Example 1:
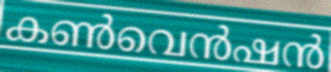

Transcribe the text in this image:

കൺവെൻഷൻ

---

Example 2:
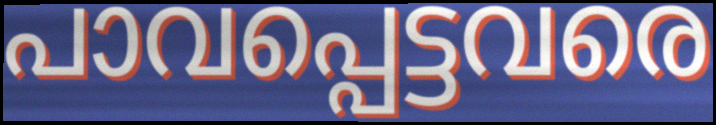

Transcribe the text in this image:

പാവപ്പെട്ടവരെ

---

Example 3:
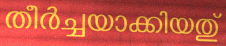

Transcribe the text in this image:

തീർച്ചയാക്കിയതു്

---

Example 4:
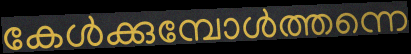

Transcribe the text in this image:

കേൾക്കുമ്പോൾത്തന്നെ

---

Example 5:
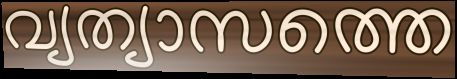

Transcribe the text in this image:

വ്യത്യാസത്തെ